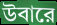
উবারে